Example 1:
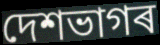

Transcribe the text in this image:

দেশভাগৰ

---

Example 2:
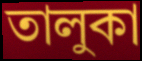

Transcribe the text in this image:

তালুকা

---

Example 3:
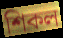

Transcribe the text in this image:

শিকল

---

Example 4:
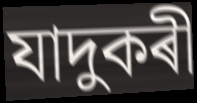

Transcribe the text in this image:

যাদুকৰী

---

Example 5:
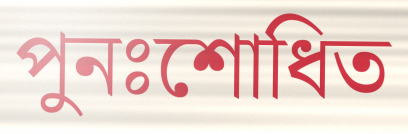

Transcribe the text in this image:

পুনঃশোধিত